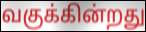
வகுக்கின்றது